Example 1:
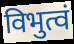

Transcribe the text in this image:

विभुत्वं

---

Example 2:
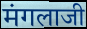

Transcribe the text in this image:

मंगलाजी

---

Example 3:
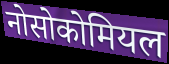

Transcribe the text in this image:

नोसोकोमियल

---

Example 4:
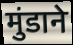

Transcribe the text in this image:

मुंडाने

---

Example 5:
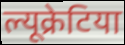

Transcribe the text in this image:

ल्यूक्रेटिया